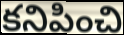
కనిపించి